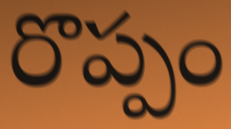
రొప్పం